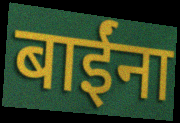
बाईंना